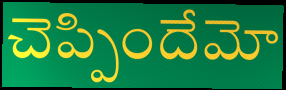
చెప్పిందేమో